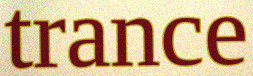
trance